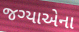
જગ્યાએના